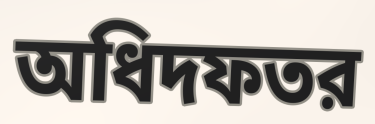
অধিদফতর